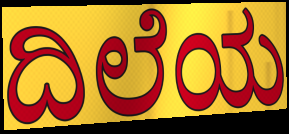
ದಿಲೆಯ